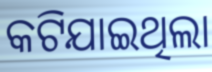
କଟିଯାଇଥିଲା